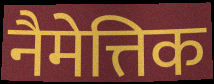
नैमेत्तिक